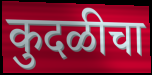
कुदळीचा